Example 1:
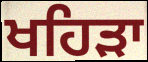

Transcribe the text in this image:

ਖਹਿਡ਼ਾ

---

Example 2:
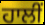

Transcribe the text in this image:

ਹਾਲੀਂ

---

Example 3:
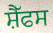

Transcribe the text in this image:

ਸ਼ੈੱਫਸ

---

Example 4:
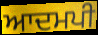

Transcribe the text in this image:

ਆਦਮਪੀ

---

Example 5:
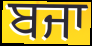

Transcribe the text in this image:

ਬਜਾ